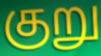
குறு